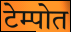
टेम्पोत